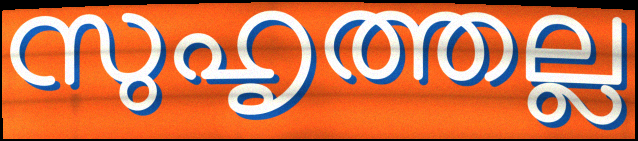
സുഹൃത്തല്ല